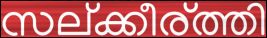
സല്ക്കീര്ത്തി